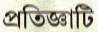
প্রতিজ্ঞাটি